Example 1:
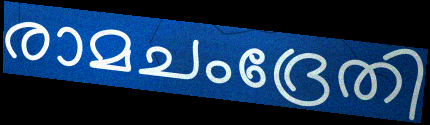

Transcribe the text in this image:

രാമചംദ്രേതി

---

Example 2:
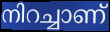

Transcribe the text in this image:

നിറച്ചാണ്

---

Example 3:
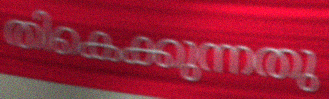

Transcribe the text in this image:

തികെക്കുന്നതു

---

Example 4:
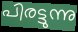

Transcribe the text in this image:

പിരട്ടുന്നു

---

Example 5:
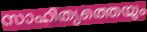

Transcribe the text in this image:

സാഹിത്യത്തെയും